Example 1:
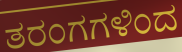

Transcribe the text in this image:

ತರಂಗಗಳಿಂದ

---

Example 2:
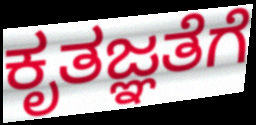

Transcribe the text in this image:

ಕೃತಜ್ಞತೆಗೆ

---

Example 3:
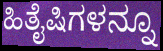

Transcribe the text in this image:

ಹಿತೈಷಿಗಳನ್ನೂ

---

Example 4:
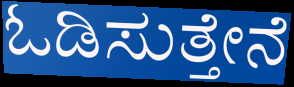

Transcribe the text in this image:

ಓಡಿಸುತ್ತೇನೆ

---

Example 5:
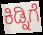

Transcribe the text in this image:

ಕಿಡ್ನಿಗೆ